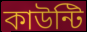
কাউন্টি